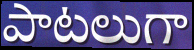
పాటలుగా